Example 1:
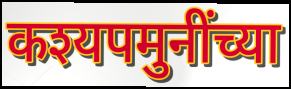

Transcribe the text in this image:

कश्यपमुनींच्या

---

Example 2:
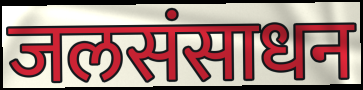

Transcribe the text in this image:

जलसंसाधन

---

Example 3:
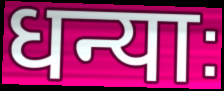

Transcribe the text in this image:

धन्याः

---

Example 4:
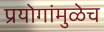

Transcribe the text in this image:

प्रयोगांमुळेच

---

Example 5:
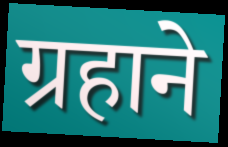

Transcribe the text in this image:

ग्रहाने